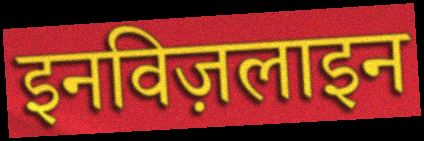
इनविज़लाइन